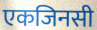
एकजिनसी